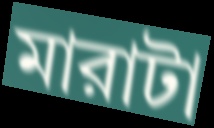
মারাটা